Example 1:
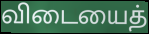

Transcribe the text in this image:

விடையைத்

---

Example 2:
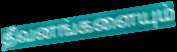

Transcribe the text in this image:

தீவனங்களையும்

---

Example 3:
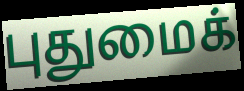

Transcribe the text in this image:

புதுமைக்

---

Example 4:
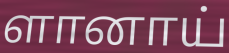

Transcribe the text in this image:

ளானாய்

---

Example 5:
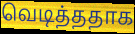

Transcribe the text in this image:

வெடித்ததாக